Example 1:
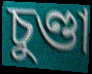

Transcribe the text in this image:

চুণ্ডা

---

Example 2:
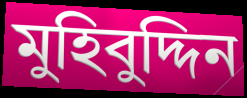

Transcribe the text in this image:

মুহিবুদ্দিন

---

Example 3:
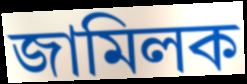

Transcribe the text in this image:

জামিলক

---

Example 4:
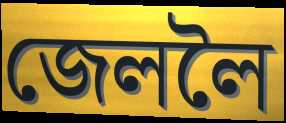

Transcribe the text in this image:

জেললৈ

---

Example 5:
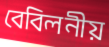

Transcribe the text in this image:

বেবিলনীয়